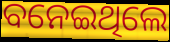
ବନେଇଥିଲେ